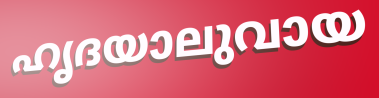
ഹൃദയാലുവായ